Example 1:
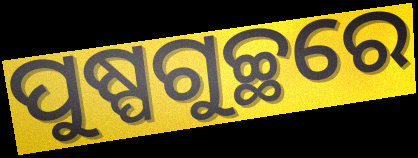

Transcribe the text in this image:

ପୁଷ୍ପଗୁଚ୍ଛରେ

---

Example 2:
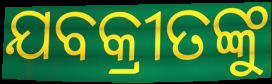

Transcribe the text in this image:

ଯବକ୍ରୀତଙ୍କୁ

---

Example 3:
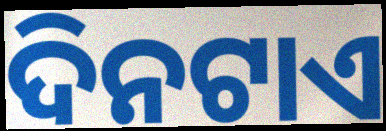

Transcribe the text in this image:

ଦିନଟାଏ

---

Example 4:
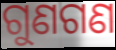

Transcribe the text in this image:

ଗୁଣଗଣ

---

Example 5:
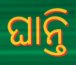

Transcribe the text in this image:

ଘାନ୍ତି